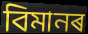
বিমানৰ